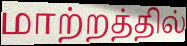
மாற்றத்தில்